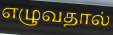
எழுவதால்